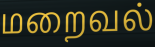
மறைவல்